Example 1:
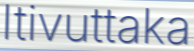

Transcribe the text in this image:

Itivuttaka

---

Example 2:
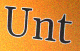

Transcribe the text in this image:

Unt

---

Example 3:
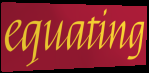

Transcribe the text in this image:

equating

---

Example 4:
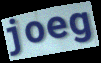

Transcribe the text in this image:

joeg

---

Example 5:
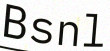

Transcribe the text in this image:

Bsnl